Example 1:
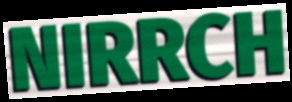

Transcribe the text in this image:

NIRRCH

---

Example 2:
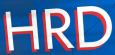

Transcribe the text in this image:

HRD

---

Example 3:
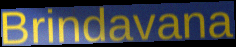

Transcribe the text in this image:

Brindavana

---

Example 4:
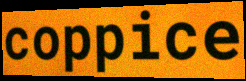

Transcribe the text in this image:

coppice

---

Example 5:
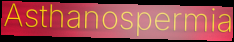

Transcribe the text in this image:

Asthanospermia